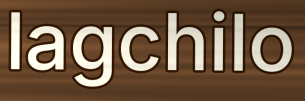
lagchilo